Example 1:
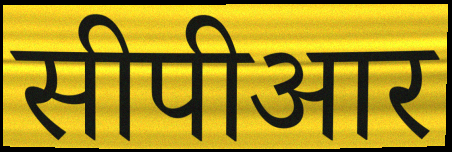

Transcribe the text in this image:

सीपीआर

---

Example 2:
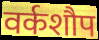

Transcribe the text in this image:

वर्कशौप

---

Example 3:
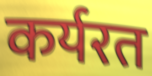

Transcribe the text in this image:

कर्यरत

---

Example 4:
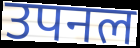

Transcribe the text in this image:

उपनल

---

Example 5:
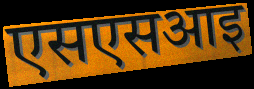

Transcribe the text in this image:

एसएसआइ